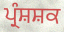
ਪ੍ਰੰਸ਼ਸ਼ਕ